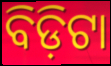
ବିଡ଼ିଟା